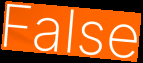
False